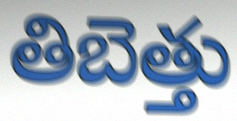
తిబెత్తు